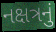
નક્ષત્રનું